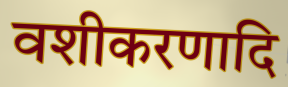
वशीकरणादि